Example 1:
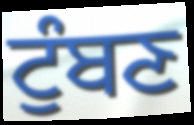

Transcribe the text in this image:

ਟੁੰਬਣ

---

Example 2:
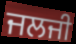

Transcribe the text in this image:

ਜਲਜੀ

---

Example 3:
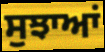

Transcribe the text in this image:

ਸੁਝਾਆਂ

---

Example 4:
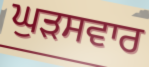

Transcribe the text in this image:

ਘੁੜਸਵਾਰ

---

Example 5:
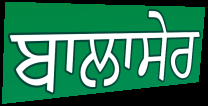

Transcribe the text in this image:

ਬਾਲਾਸੇਰ